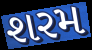
શરમ